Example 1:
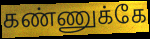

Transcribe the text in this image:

கண்ணுக்கே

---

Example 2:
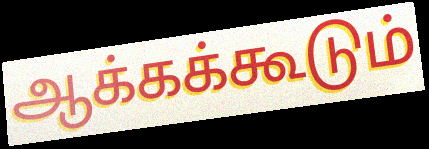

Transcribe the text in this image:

ஆக்கக்கூடும்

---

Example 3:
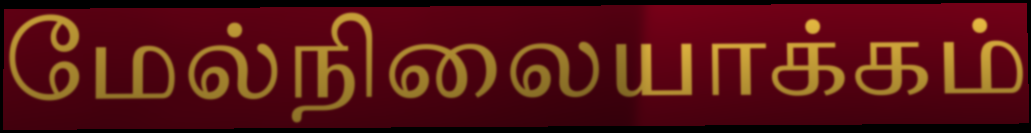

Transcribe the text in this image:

மேல்நிலையாக்கம்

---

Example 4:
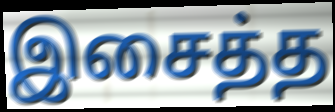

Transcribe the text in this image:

இசைத்த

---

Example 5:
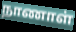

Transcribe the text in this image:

நாணாள்